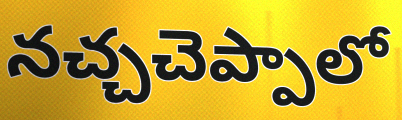
నచ్చచెప్పాలో